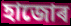
হাজোৰ